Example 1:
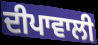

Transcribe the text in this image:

ਦੀਪਾਵਾਲੀ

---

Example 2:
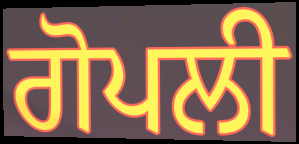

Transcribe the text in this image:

ਗੋਪਲੀ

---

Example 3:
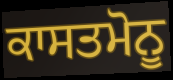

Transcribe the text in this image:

ਕਾਸਤਮੋਨੂ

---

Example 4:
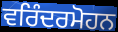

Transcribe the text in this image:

ਵਰਿੰਦਰਮੋਹਨ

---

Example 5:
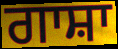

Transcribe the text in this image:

ਗਾਸ਼ਾ